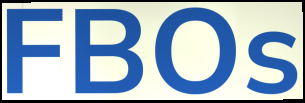
FBOs